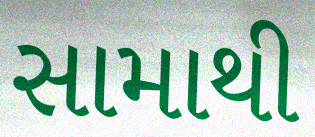
સામાથી